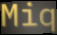
Miq